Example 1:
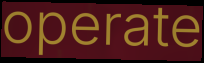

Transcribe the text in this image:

operate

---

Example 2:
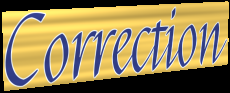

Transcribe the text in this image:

Correction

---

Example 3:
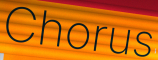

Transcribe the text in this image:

Chorus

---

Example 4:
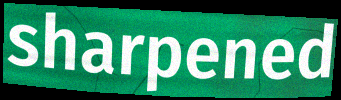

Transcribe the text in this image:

sharpened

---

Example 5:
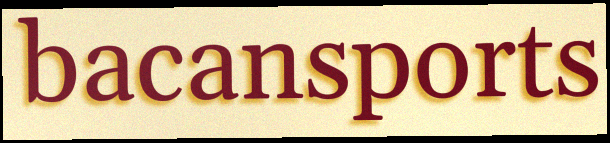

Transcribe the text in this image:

bacansports